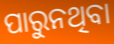
ପାରୁନଥିବା